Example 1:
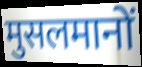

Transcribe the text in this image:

मुसलमानों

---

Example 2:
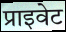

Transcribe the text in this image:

प्राइवेट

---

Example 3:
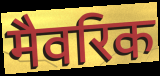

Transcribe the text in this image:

मैवरिक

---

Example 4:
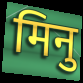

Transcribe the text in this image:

मिनु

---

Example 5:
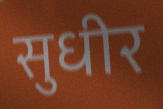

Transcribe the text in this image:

सुधीर